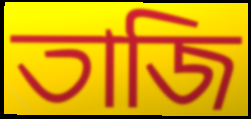
তাজি